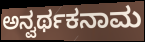
ಅನ್ವರ್ಥಕನಾಮ